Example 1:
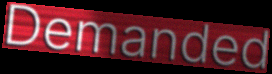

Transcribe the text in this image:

Demanded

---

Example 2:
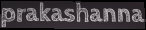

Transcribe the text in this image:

prakashanna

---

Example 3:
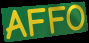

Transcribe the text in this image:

AFFO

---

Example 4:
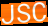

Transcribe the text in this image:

JSC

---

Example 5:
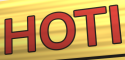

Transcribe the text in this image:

HOTI